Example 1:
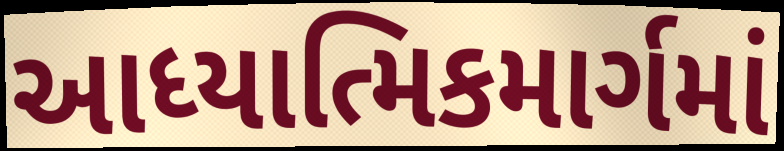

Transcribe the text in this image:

આધ્યાત્મિકમાર્ગમાં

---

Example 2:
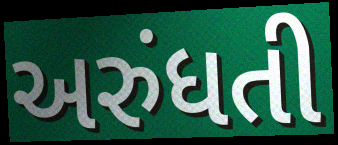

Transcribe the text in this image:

અરુંધતી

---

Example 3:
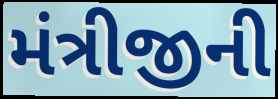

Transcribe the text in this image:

મંત્રીજીની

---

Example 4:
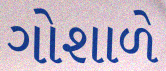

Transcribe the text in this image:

ગોશાળે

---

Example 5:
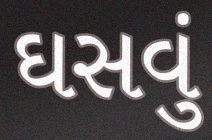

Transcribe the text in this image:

ઘસવું